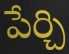
పేర్చి